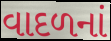
વાદળનાં